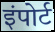
इंपोर्ट